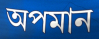
অপমান